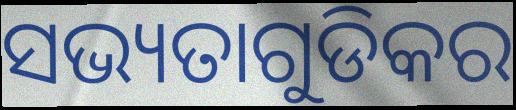
ସଭ୍ୟତାଗୁଡିକର